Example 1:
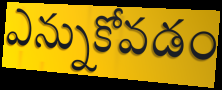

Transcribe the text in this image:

ఎన్నుకోవడం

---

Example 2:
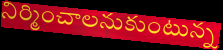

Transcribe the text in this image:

నిర్మించాలనుకుంటున్న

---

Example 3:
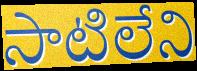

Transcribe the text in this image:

సాటిలేని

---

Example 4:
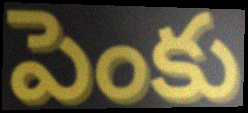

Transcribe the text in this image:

పెంకు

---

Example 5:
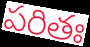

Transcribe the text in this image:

పరితః